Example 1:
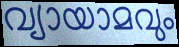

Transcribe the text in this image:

വ്യായാമവും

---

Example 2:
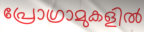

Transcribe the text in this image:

പ്രോഗ്രാമുകളിൽ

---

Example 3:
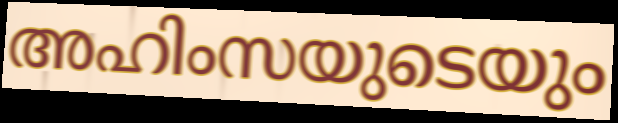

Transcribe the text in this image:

അഹിംസയുടെയും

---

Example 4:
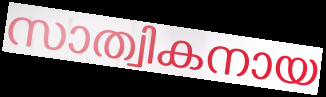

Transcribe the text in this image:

സാത്വികനായ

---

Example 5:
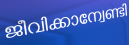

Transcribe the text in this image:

ജീവിക്കാന്വേണ്ടി